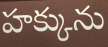
హక్కును